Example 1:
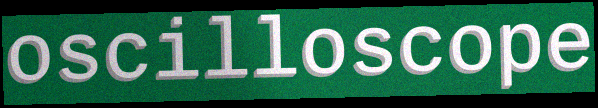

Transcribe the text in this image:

oscilloscope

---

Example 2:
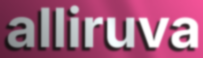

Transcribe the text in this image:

alliruva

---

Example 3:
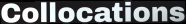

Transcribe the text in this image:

Collocations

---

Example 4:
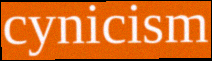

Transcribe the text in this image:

cynicism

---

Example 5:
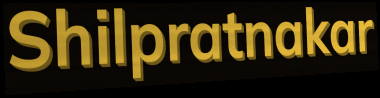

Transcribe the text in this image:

Shilpratnakar